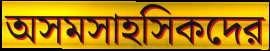
অসমসাহসিকদের